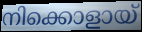
നിക്കൊളായ്